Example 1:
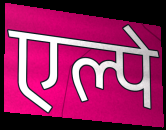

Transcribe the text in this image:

एल्पे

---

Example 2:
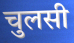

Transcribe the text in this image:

चुलसी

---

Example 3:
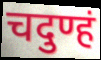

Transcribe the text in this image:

चदुण्हं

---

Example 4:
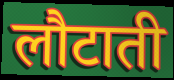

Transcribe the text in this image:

लौटाती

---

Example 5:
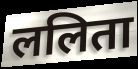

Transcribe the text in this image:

ललिता